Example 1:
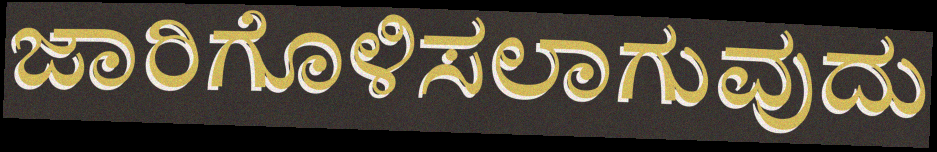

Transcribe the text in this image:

ಜಾರಿಗೊಳಿಸಲಾಗುವುದು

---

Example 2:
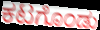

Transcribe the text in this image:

ಕಟಗೊಂಡು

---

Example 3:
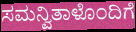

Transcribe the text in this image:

ಸಮನ್ವಿತಾಳೊಂದಿಗೆ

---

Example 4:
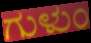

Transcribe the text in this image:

ಗುಳುಂ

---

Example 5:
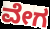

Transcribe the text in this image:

ವೇಗ